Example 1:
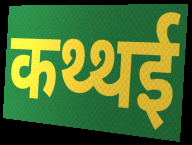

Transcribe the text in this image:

कथ्थई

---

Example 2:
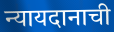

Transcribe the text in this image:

न्यायदानाची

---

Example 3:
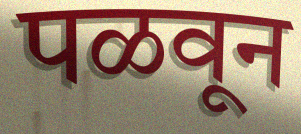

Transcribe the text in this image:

पळवून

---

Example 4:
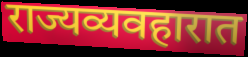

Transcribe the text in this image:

राज्यव्यवहारात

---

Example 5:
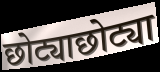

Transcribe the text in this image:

छोट्याछोट्या